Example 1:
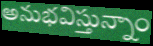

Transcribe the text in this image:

అనుభవిస్తున్నాం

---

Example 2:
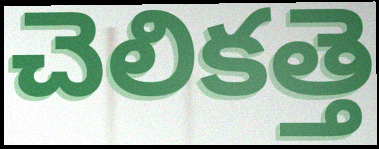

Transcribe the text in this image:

చెలికత్తె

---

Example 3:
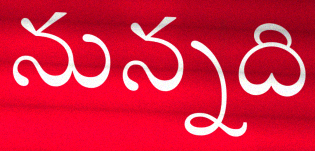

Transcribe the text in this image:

నున్నది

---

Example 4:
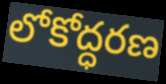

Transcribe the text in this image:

లోకోద్ధరణ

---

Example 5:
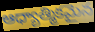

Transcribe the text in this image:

ఆధ్యాత్మికమైన